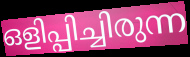
ഒളിപ്പിച്ചിരുന്ന